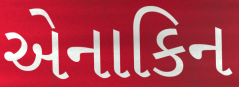
એનાકિન